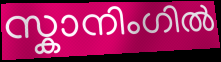
സ്കാനിംഗിൽ